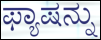
ಫ್ಯಾಷನ್ನು